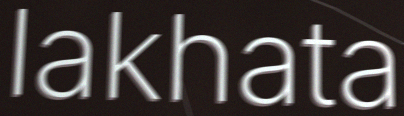
lakhata